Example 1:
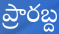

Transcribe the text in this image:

ప్రారబ్ద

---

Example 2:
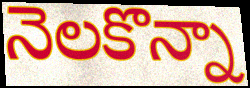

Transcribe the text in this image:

నెలకొన్నా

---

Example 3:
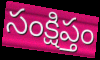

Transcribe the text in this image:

సంక్షిప్తం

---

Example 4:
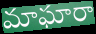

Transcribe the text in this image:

మాఘారా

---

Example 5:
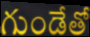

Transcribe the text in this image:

గుండేతో